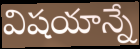
విషయాన్నే